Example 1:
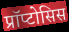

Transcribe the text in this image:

प्रॉप्टोसिस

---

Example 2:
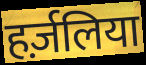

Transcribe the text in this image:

हर्ज़लिया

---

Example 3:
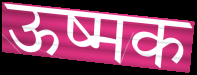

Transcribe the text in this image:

ऊष्मक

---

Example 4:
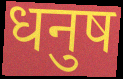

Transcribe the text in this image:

धनुष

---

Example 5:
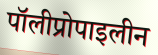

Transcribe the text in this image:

पॉलीप्रोपाइलीन